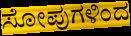
ಸೋಪುಗಳಿಂದ